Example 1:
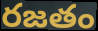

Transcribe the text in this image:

రజతం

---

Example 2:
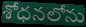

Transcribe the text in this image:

శోధనలోను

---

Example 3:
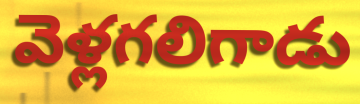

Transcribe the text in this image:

వెళ్లగలిగాడు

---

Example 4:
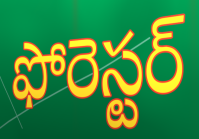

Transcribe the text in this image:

ఫోరెస్టర్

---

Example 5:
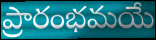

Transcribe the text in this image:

ప్రారంభమయే